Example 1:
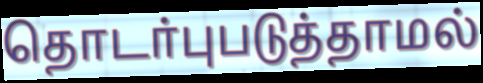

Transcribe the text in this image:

தொடர்புபடுத்தாமல்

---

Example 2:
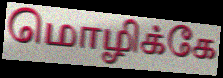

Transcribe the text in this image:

மொழிக்கே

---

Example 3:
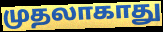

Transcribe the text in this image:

முதலாகாது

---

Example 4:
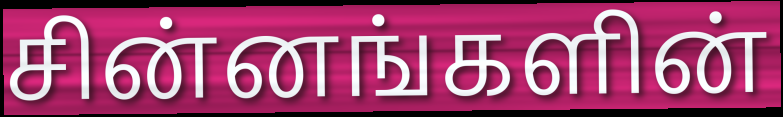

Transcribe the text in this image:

சின்னங்களின்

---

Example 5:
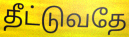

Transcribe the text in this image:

தீட்டுவதே